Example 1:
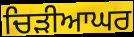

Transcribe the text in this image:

ਚਿੜੀਆਘਰ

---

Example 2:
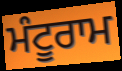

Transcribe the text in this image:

ਮੰਟੂਰਾਮ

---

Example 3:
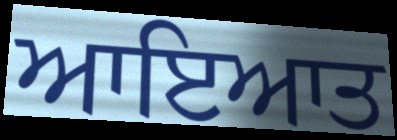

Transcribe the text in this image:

ਆਇਆਤ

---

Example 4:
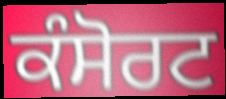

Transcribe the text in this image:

ਕੰਸੋਰਟ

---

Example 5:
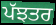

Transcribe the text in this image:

ਪੱਝਤਰ